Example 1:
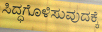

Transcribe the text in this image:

ಸಿದ್ಧಗೊಳಿಸುವುದಕ್ಕೆ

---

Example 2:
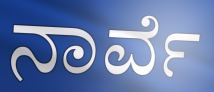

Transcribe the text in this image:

ನಾರ್ವೆ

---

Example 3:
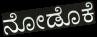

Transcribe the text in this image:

ನೋಡೊಕೆ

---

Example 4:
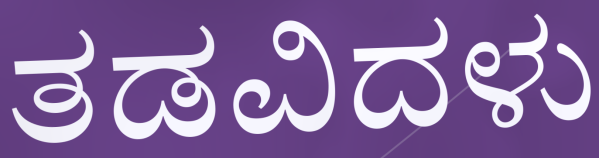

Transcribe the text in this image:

ತಡವಿದಳು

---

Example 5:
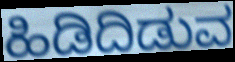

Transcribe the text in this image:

ಹಿಡಿದಿಡುವ